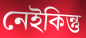
নেইকিন্তু